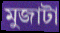
মুজাটা